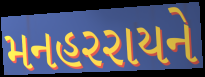
મનહરરાયને